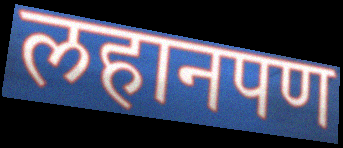
लहानपण